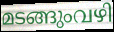
മടങ്ങുംവഴി